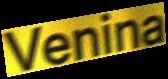
Venina